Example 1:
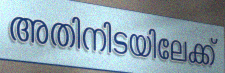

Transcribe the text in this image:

അതിനിടയിലേക്ക്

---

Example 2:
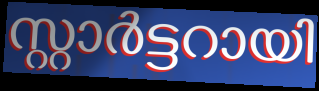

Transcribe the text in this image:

സ്റ്റാർട്ടറായി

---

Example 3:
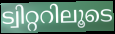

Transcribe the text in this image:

ട്വിറ്ററിലൂടെ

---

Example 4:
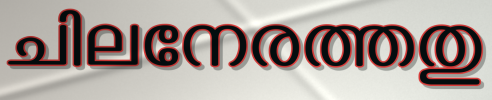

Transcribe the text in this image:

ചിലനേരത്തതു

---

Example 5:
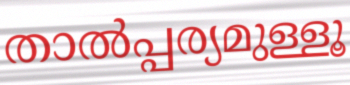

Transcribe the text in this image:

താൽപ്പര്യമുള്ളൂ